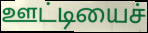
ஊட்டியைச்